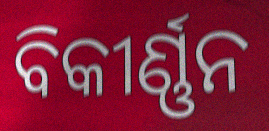
ବିକୀର୍ଣ୍ଣନ